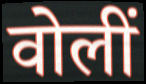
वोलीं